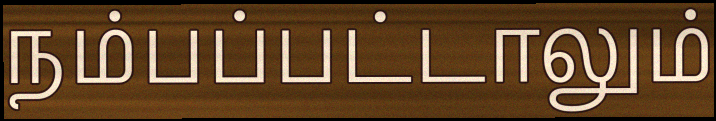
நம்பப்பட்டாலும்